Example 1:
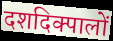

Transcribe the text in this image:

दशदिक्पालों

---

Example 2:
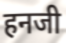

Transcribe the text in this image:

हनजी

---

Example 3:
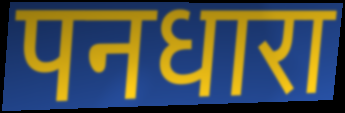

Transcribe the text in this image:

पनधारा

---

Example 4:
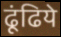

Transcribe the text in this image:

ढूंढिये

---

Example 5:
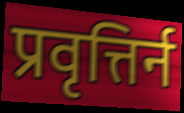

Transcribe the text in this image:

प्रवृत्तिर्न